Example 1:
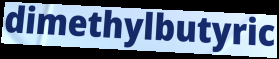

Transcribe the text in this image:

dimethylbutyric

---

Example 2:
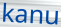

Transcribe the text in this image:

kanu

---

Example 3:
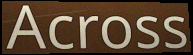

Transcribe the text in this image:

Across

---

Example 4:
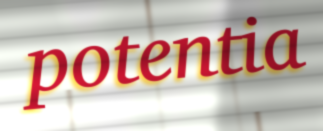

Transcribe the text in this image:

potentia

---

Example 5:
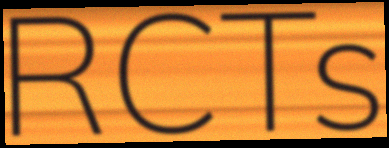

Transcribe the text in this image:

RCTs